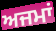
ਅਜਮਾਂ